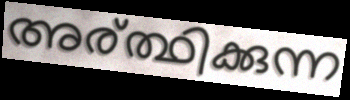
അര്ത്ഥിക്കുന്ന